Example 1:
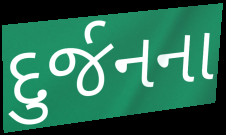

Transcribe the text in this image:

દુર્જનના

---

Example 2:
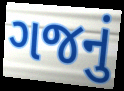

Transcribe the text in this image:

ગજનું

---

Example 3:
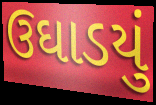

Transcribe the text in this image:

ઉઘાડયું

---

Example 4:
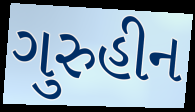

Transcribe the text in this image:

ગુરુહીન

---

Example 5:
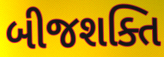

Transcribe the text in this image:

બીજશક્તિ